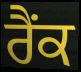
ਰੈੰਕ